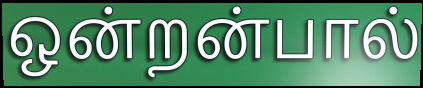
ஒன்றன்பால்